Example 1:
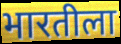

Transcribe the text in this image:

भारतीला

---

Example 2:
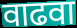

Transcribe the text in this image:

वाढवा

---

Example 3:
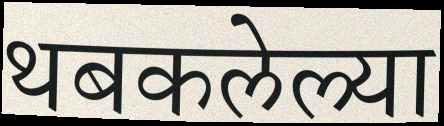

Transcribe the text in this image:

थबकलेल्या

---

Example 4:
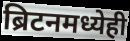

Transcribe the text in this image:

ब्रिटनमध्येही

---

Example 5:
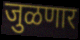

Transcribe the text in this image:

जुळणार